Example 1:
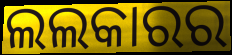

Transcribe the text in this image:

ଲଲକାରର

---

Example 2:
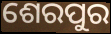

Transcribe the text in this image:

ଶେରପୁର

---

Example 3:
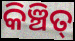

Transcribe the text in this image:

କିଞ୍ଚିତ୍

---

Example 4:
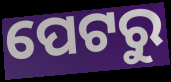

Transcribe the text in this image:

ପେଟରୁ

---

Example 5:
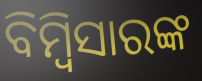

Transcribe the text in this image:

ବିମ୍ବିସାରଙ୍କ